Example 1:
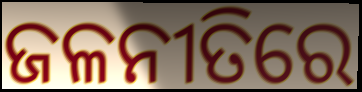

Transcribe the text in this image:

ଜଳନୀତିରେ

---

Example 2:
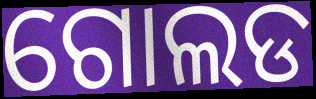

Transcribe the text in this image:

ଗୋଲଡ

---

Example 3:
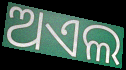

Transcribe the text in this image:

ଅଏଲ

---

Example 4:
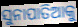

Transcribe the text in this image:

ସୁନାପାତିଆକୁ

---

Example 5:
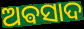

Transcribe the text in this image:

ଅଵସାଦ